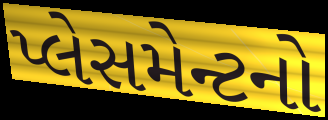
પ્લેસમેન્ટનો